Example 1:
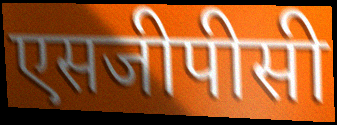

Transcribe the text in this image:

एसजीपीसी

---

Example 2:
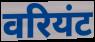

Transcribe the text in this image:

वरियंट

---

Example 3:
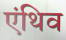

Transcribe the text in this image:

एंथिव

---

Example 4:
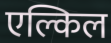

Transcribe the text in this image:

एल्किल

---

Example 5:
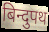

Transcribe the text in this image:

बिन्दुपथ